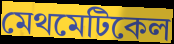
মেথমেটিকেল